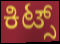
ಕಿಟ್ಸ್